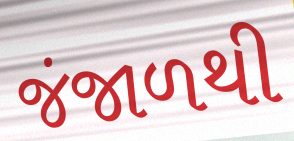
જંજાળથી